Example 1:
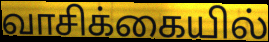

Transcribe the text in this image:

வாசிக்கையில்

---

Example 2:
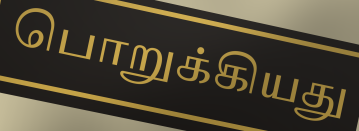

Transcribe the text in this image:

பொறுக்கியது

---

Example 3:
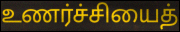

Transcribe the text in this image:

உணர்ச்சியைத்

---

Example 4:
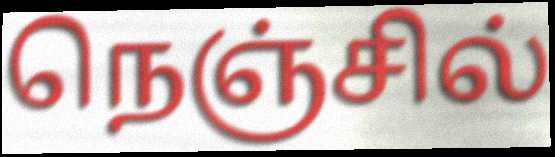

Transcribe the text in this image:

நெஞ்சில்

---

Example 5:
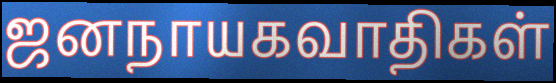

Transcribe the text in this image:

ஜனநாயகவாதிகள்